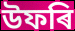
উফৰি